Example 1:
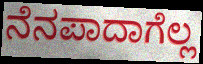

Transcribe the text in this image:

ನೆನಪಾದಾಗೆಲ್ಲ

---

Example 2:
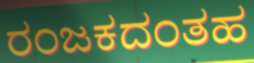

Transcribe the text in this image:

ರಂಜಕದಂತಹ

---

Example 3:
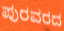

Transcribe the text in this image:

ಪುರವರದ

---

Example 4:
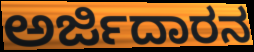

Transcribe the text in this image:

ಅರ್ಜಿದಾರನ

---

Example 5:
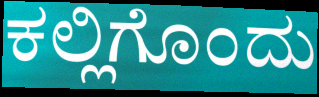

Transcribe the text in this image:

ಕಲ್ಲಿಗೊಂದು